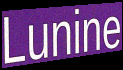
Lunine